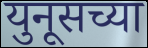
युनूसच्या